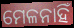
ମେଳନାହିଁ